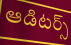
ఆడిటర్స్